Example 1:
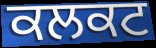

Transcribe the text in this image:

ਕਲਕਟ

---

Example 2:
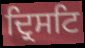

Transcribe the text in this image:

ਦ੍ਰਿਸਟਿ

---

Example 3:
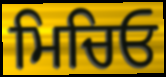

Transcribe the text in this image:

ਮਿਚਿਓ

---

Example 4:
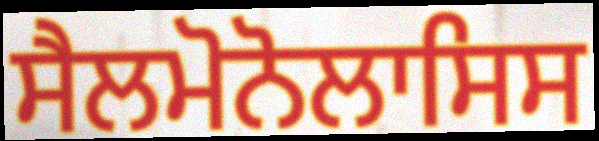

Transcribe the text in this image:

ਸੈਲਮੋਨੋਲਾਸਿਸ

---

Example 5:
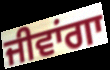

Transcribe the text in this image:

ਜੀਵਾਂਗਾ